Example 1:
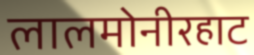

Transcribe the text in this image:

लालमोनीरहाट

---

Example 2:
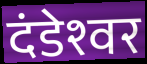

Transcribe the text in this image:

दंडेश्वर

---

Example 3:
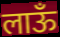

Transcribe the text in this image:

लाऊँ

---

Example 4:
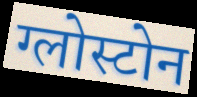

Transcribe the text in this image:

ग्लोस्टोन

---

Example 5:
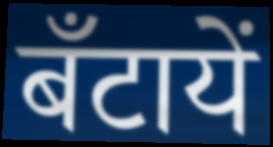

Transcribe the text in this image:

बँटायें